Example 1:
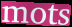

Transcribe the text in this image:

mots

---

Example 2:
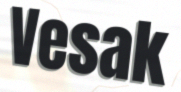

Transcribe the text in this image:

Vesak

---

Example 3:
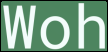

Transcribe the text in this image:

Woh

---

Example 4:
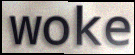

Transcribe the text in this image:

woke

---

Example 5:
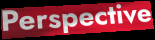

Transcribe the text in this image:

Perspective